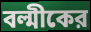
বল্মীকের